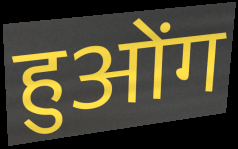
हुओंग